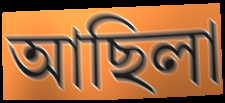
আছিলা